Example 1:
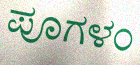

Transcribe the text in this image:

ಪೂಗಳಂ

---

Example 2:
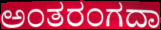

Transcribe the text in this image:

ಅಂತರಂಗದಾ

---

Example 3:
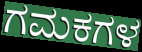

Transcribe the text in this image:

ಗಮಕಗಳ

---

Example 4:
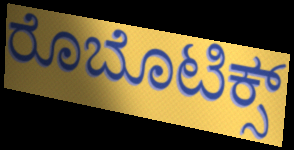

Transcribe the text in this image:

ರೊಬೊಟಿಕ್ಸ್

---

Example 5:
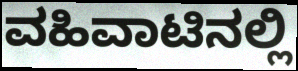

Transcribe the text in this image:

ವಹಿವಾಟಿನಲ್ಲಿ